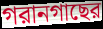
গরানগাছের